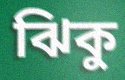
ঝিকু